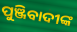
ପୁଞ୍ଜିବାଦୀଙ୍କ